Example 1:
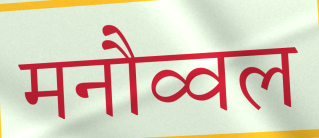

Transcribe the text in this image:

मनौव्वल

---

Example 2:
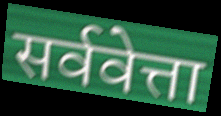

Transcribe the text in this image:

सर्ववेत्ता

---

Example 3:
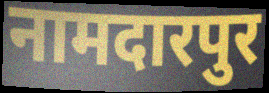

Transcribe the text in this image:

नामदारपुर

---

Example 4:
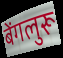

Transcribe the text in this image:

बेंगलुरू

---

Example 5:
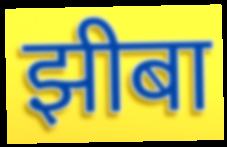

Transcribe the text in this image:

झीबा